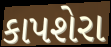
કાપશેરા